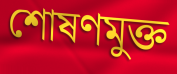
শোষণমুক্ত